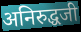
अनिरुद्धजी